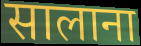
सालाना